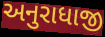
અનુરાધાજી